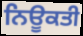
ਨਿਊਕਤੀ